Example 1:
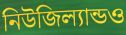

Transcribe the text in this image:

নিউজিল্যান্ডও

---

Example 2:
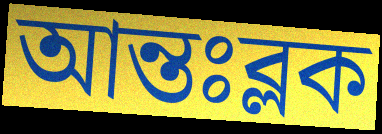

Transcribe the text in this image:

আন্তঃব্লক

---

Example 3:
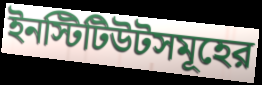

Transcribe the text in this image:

ইনস্টিটিউটসমূহের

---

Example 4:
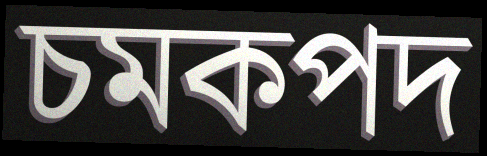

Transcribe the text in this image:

চমকপদ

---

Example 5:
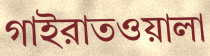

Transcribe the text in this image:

গাইরাতওয়ালা